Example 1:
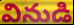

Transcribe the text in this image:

వినుడి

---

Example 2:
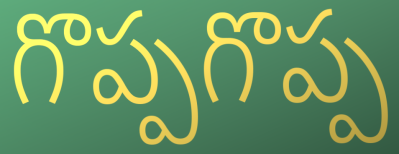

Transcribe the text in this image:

గొప్పగొప్ప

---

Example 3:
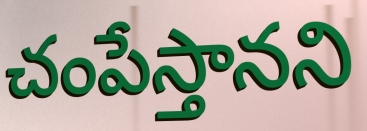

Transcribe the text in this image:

చంపేస్తానని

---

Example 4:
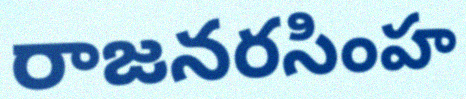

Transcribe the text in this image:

రాజనరసింహ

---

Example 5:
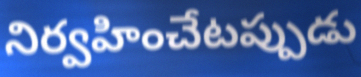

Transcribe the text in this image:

నిర్వహించేటప్పుడు